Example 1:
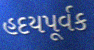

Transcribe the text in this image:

હદયપૂર્વક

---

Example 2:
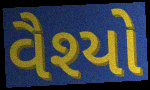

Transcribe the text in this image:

વૈશ્યો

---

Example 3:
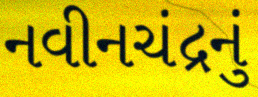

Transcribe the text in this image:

નવીનચંદ્રનું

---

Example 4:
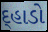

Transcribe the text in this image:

દ્હાડો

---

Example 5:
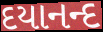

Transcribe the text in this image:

દયાનન્દ